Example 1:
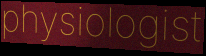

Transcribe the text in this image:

physiologist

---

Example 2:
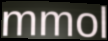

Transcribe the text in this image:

mmol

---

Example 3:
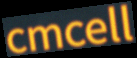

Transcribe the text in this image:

cmcell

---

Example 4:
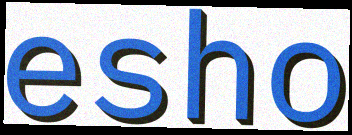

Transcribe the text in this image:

esho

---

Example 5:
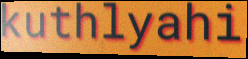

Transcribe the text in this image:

kuthlyahi